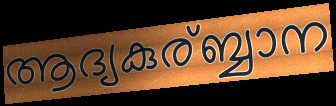
ആദ്യകുര്ബ്ബാന